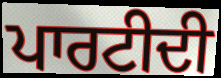
ਪਾਰਟੀਦੀ